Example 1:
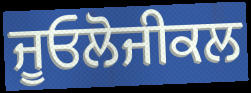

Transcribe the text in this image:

ਜੂਓਲੋਜੀਕਲ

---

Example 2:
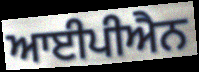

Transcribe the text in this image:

ਆਈਪੀਐਨ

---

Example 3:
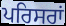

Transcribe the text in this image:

ਪਰਿਸਰਾਂ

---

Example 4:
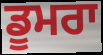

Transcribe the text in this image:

ਡੂਮਰਾ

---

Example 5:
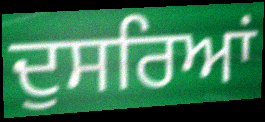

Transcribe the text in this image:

ਦੁਸਰਿਆਂ